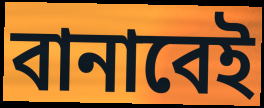
বানাবেই